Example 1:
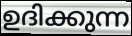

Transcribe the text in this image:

ഉദിക്കുന്ന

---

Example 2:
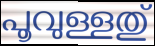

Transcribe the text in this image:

പൂവുള്ളതു്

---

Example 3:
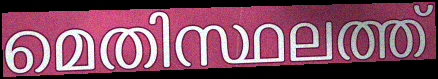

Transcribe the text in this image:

മെതിസ്ഥലത്ത്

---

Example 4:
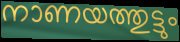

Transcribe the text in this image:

നാണയത്തുട്ടും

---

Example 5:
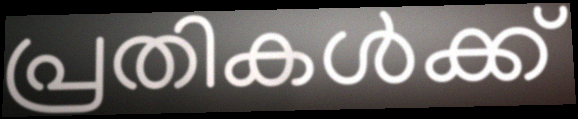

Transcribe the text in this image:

പ്രതികൾക്ക്